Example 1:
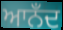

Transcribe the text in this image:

ਆਨਁਦ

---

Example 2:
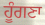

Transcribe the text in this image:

ਹੂੰਗਣਾ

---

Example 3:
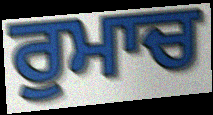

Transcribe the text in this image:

ਰੁਮਾਚ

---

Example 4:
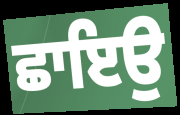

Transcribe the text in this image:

ਛਾਇਉ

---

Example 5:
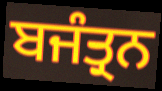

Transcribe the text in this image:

ਬਜੰਤ੍ਰਨ